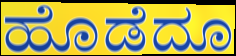
ಹೊಡೆದೂ